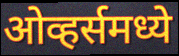
ओव्हर्समध्ये